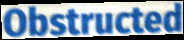
Obstructed